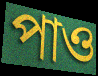
পাও